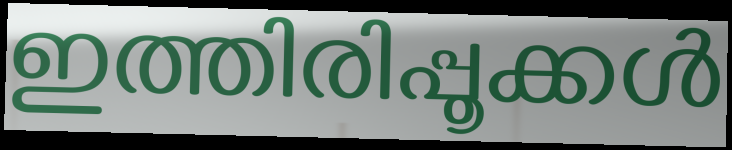
ഇത്തിരിപ്പൂക്കൾ